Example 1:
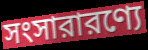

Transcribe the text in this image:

সংসারারণ্যে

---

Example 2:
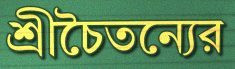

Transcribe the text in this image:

শ্রীচৈতন্যের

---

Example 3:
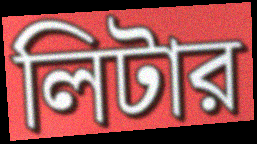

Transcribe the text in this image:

লিটার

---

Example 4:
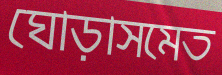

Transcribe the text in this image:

ঘোড়াসমেত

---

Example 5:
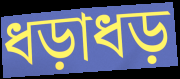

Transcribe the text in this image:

ধড়াধড়